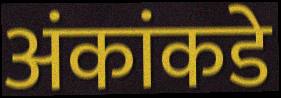
अंकांकडे